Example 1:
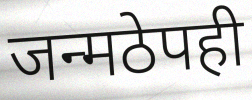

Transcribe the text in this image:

जन्मठेपही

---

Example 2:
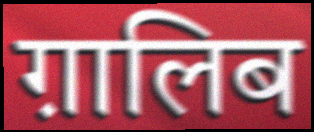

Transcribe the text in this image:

ग़ालिब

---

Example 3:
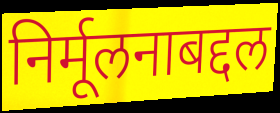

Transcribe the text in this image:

निर्मूलनाबद्दल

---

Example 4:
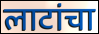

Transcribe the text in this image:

लाटांचा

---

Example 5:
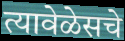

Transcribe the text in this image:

त्यावेळेसचे